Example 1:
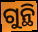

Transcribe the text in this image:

ଗୁନ୍ଥି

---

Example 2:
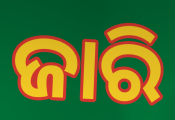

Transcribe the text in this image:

ଜାରି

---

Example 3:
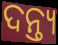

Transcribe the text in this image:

ଦନ୍ତ୍ୟ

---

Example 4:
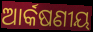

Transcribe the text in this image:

ଆର୍କଷଣୀୟ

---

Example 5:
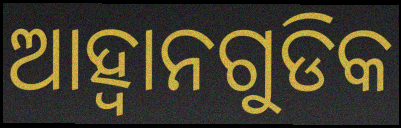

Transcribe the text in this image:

ଆହ୍ୱାନଗୁଡିକ